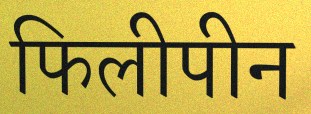
फिलीपीन